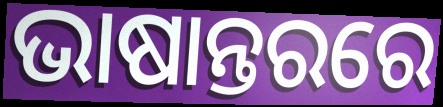
ଭାଷାନ୍ତରରେ